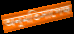
অনুমতিসাপেক্ষ